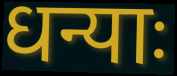
धन्याः